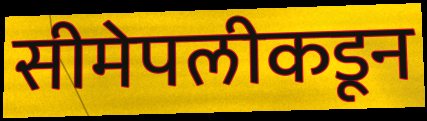
सीमेपलीकडून